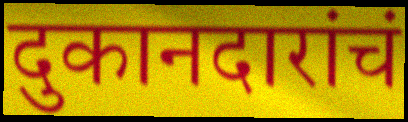
दुकानदारांचं